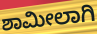
ಶಾಮೀಲಾಗಿ